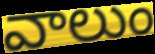
వాలుం